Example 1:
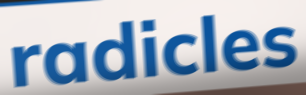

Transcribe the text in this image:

radicles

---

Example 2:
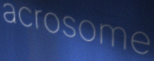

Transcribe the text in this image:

acrosome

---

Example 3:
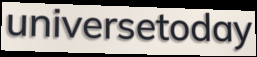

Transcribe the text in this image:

universetoday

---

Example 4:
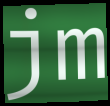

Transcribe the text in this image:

jm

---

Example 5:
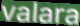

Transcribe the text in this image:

valara